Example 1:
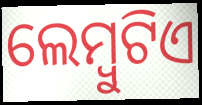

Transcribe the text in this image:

ଲେମ୍ବୁଟିଏ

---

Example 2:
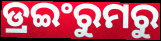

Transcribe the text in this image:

ଡ୍ରଇଂରୁମରୁ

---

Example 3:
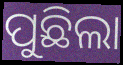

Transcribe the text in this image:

ପୁଛିଲା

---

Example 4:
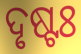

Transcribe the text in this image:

ଦୃଷ୍ଟଃ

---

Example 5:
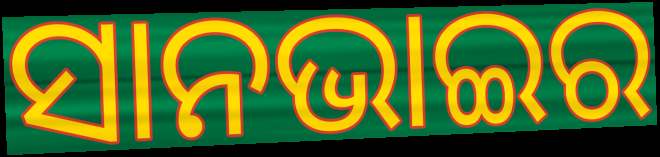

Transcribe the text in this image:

ସାନଭାଇର